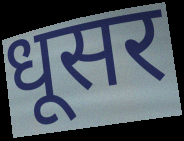
धूसर